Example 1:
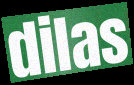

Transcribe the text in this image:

dilas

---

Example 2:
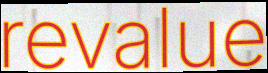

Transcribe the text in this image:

revalue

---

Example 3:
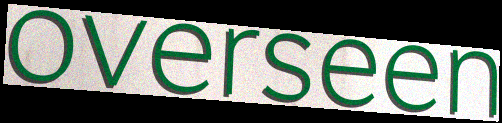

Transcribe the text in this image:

overseen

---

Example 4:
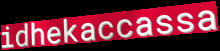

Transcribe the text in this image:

idhekaccassa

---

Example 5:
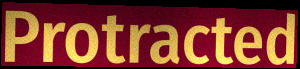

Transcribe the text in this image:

Protracted